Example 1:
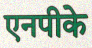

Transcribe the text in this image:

एनपीके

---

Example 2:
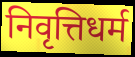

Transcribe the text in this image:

निवृत्तिधर्म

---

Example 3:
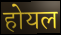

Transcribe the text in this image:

होयल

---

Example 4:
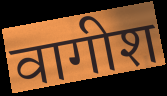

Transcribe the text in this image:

वागीश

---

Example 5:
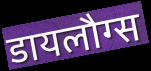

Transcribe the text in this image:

डायलौग्स